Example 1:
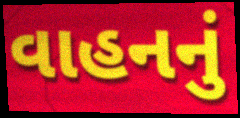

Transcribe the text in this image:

વાહનનું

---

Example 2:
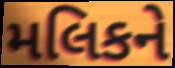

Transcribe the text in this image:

મલિકને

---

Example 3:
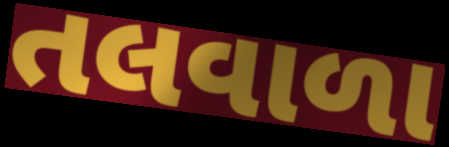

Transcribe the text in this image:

તલવાળા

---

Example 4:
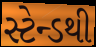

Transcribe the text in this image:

સ્ટેન્ડથી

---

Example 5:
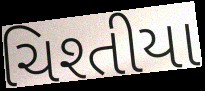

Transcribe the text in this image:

ચિશ્તીયા